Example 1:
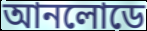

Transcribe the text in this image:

আনলোডে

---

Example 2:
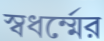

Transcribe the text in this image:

স্বধর্ম্মের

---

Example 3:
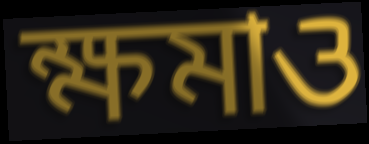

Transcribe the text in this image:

ক্ষমাও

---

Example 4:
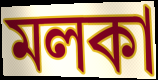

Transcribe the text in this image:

মলকা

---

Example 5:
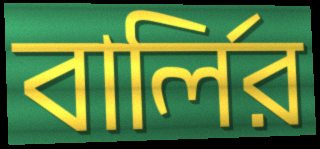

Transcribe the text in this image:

বার্লির